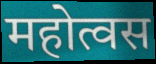
महोत्वस